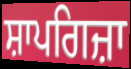
ਸ਼ਾਪਗਿਜ਼ਾ